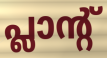
പ്ലാന്റ്